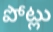
పోట్లు